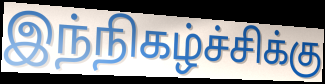
இந்நிகழ்ச்சிக்கு